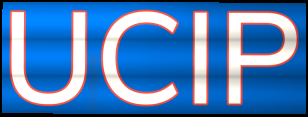
UCIP